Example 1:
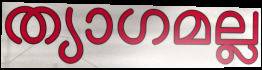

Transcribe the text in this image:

ത്യാഗമല്ല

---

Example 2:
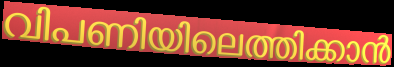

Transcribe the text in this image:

വിപണിയിലെത്തിക്കാൻ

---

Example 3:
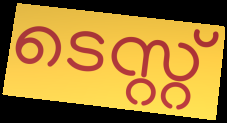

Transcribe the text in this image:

ടെസ്റ്റ്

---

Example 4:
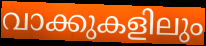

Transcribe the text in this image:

വാക്കുകളിലും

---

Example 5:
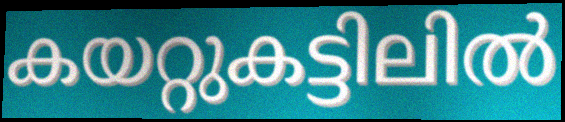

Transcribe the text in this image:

കയറ്റുകട്ടിലിൽ